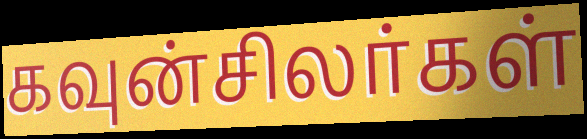
கவுன்சிலர்கள்